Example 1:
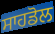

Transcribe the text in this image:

ਸਾਹਡੋਲ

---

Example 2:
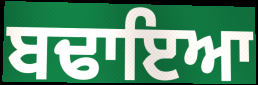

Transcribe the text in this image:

ਬਢਾਇਆ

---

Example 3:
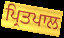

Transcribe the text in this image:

ਪ੍ਰਿਤਪਾਲ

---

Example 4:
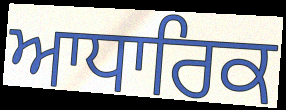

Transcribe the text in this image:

ਆਧਾਰਿਕ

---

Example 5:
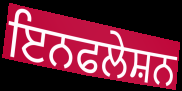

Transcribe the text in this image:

ਇਨਫਲੇਸ਼ਨ